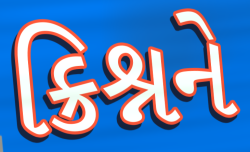
ક્રિશ્નને